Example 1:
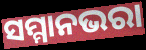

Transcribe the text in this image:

ସମ୍ମାନଭରା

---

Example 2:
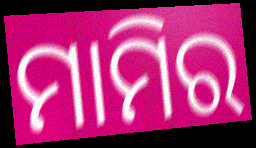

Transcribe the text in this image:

ମାମିର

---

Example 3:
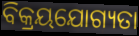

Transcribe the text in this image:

ବିକ୍ରୟଯୋଗ୍ୟତା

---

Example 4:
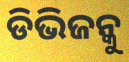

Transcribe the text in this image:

ଡିଭିଜନ୍କୁ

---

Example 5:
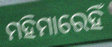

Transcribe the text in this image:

ମହିମାରେହିଁ